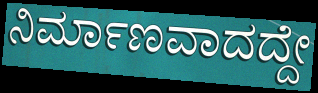
ನಿರ್ಮಾಣವಾದದ್ದೇ